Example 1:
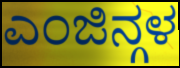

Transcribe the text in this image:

ಎಂಜಿನ್ಗಳ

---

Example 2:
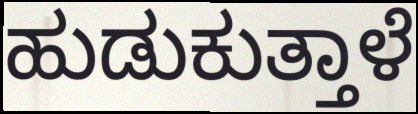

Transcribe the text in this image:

ಹುಡುಕುತ್ತಾಳೆ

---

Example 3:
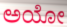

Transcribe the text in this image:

ಅಯೋ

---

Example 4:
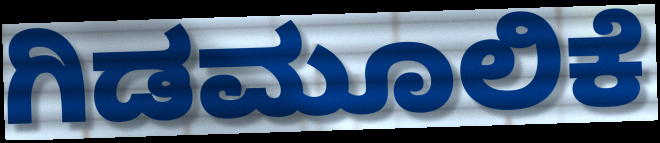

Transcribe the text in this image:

ಗಿಡಮೂಲಿಕೆ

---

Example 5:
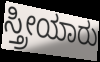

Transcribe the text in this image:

ಸ್ತ್ರೀಯಾರು